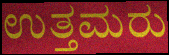
ಉತ್ತಮರು